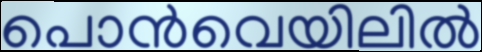
പൊൻവെയിലിൽ